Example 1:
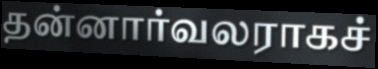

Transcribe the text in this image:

தன்னார்வலராகச்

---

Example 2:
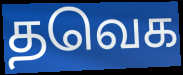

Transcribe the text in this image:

தவெக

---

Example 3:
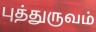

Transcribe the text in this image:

புத்துருவம்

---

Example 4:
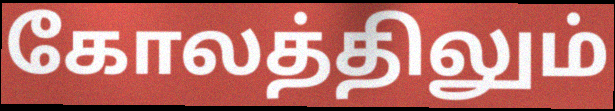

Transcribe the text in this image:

கோலத்திலும்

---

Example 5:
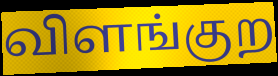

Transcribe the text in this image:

விளங்குற